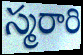
స్మరారి